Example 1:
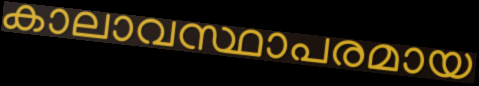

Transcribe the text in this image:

കാലാവസ്ഥാപരമായ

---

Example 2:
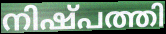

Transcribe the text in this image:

നിഷ്പത്തി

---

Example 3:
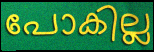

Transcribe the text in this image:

പോകില്ല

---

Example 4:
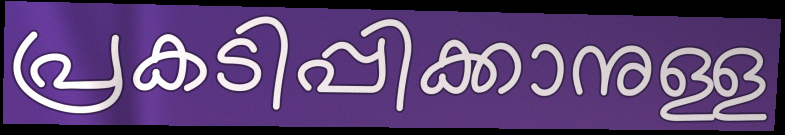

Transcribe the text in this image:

പ്രകടിപ്പിക്കാനുള്ള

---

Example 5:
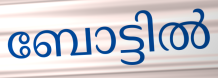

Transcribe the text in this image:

ബോട്ടിൽ